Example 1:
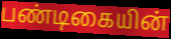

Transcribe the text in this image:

பண்டிகையின்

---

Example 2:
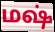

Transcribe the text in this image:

மஷ்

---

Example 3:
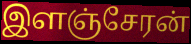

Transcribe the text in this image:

இளஞ்சேரன்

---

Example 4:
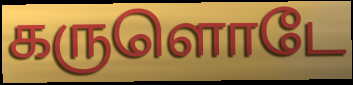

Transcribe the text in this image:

கருளொடே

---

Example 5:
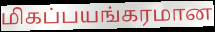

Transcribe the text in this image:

மிகப்பயங்கரமான